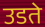
उडते